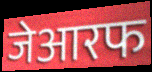
जेआरफ